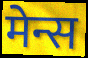
मेन्स